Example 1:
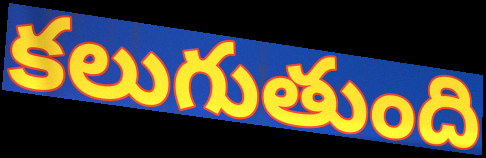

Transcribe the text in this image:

కలుగుతుంది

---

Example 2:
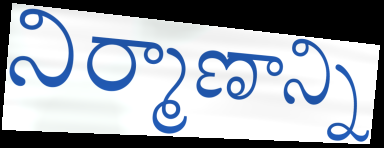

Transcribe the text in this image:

నిర్మాణాన్ని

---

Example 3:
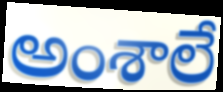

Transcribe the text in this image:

అంశాలే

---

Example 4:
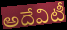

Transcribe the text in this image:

అదేవిటీ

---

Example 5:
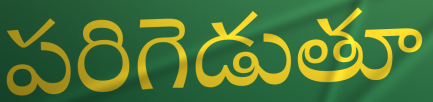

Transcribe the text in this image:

పరిగెడుతూ